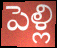
పెళ్లి